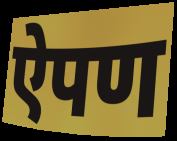
ऐपण